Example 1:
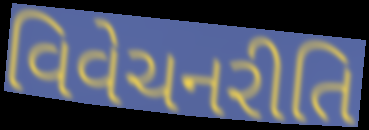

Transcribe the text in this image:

વિવેચનરીતિ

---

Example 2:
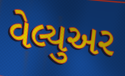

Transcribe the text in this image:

વેલ્યુઅર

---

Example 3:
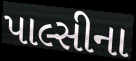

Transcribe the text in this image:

પાલ્સીના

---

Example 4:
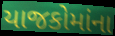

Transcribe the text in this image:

યાજકોમાંના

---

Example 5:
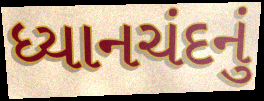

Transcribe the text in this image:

ધ્યાનચંદનું